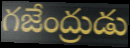
గజేంద్రుడు